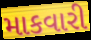
માકવારી